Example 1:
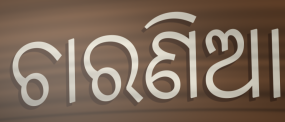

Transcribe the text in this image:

ଚାରଣିଆ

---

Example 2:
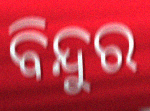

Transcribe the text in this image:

ବିନ୍ଦୁର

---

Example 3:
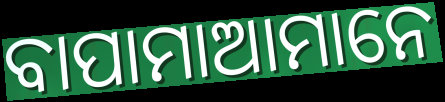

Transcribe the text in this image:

ବାପାମାଆମାନେ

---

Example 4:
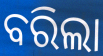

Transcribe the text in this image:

ବରିଲା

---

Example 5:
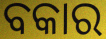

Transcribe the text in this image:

ବକାର